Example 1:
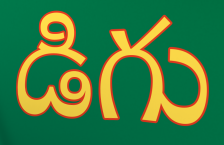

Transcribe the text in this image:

డిగు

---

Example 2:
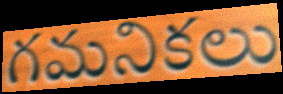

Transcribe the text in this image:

గమనికలు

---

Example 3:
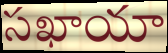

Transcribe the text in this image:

సఖాయా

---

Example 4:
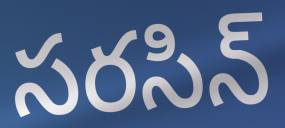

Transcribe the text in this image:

సరసిన్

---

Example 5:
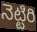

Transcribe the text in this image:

నెట్టిరి